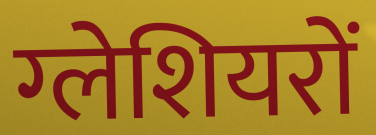
ग्‍लेशियरों